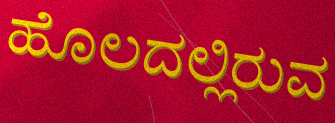
ಹೊಲದಲ್ಲಿರುವ